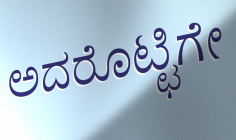
ಅದರೊಟ್ಟಿಗೇ